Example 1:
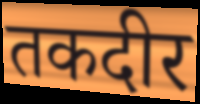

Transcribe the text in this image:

तकदीर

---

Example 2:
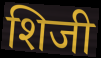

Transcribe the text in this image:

शिजी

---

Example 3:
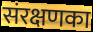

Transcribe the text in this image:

संरक्षणका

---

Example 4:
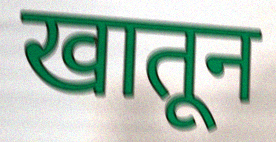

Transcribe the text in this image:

खातून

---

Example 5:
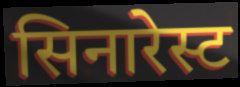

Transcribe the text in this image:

सिनारेस्ट